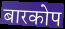
बारकोप